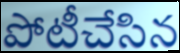
పోటీచేసిన